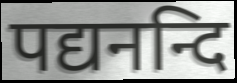
पद्यनन्दि